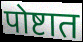
पोष्टात